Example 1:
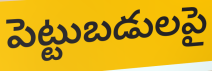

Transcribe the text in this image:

పెట్టుబడులపై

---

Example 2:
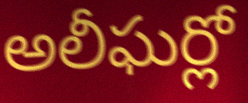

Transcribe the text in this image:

అలీఘర్లో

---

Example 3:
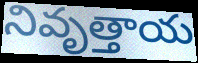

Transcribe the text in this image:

నివృత్తాయ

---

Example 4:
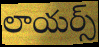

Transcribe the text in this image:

లాయర్స్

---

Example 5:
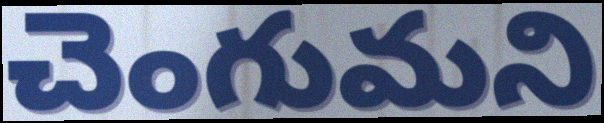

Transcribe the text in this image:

చెంగుమని